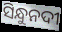
ସିନ୍ଧୁନଦୀ